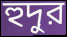
হুদুর